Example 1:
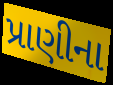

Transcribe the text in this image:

પ્રાણીના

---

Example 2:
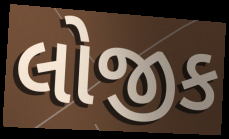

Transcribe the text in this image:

લોજીક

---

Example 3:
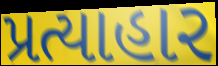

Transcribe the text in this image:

પ્રત્યાહાર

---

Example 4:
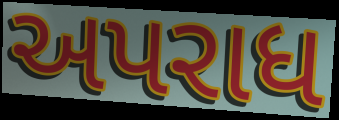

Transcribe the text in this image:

અપરાધ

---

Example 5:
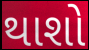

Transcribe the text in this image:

થાશો